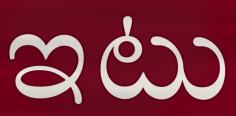
ఇటు